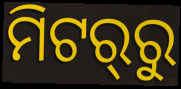
ମିଟର୍‍ରୁ